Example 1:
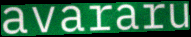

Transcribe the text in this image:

avararu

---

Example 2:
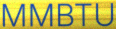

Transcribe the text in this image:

MMBTU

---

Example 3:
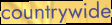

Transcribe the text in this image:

countrywide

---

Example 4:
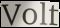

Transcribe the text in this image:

Volt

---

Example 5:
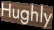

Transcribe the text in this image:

Hughly